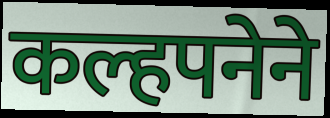
कल्हपनेने